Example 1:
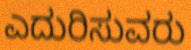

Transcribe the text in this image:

ಎದುರಿಸುವರು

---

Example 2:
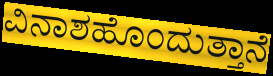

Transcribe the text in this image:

ವಿನಾಶಹೊಂದುತ್ತಾನೆ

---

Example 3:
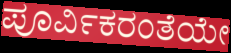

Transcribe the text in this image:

ಪೂರ್ವಿಕರಂತೆಯೇ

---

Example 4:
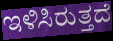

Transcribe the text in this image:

ಇಳಿಸಿರುತ್ತದೆ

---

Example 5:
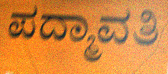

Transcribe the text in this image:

ಪದ್ಮಾವತಿ